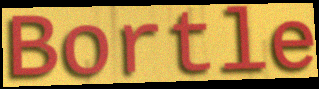
Bortle